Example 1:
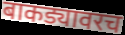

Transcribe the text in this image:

बाकड्यावरच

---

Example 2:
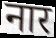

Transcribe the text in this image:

नार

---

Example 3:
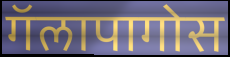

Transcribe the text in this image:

गॅलापागोस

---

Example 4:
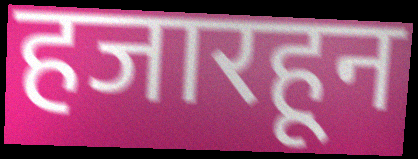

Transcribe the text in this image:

हजारहून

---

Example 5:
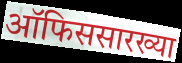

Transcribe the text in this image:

ऑफिससारख्या